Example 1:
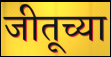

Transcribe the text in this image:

जीतूच्या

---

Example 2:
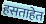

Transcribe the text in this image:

हसताहेत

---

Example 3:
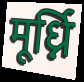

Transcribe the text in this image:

मूर्ध्नि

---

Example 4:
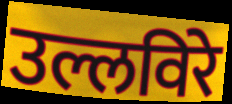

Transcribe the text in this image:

उल्लविरे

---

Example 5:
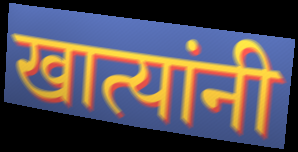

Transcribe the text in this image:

खात्यांनी